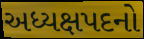
અધ્યક્ષપદનો